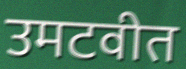
उमटवीत